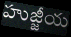
హుజ్జీయ